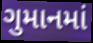
ગુમાનમાં